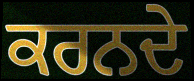
ਕਰਨਦੇ